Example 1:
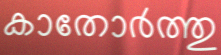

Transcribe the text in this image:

കാതോർത്തു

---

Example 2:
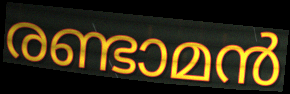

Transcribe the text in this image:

രണ്ടാമൻ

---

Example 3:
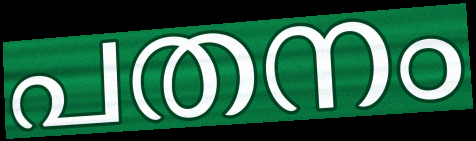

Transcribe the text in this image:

പതനം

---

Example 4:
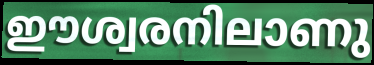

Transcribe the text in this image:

ഈശ്വരനിലാണു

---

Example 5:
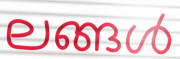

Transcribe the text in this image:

ലങ്ങൾ